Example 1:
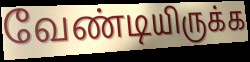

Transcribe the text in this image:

வேண்டியிருக்க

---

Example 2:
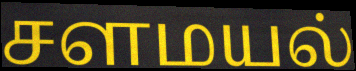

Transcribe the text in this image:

சளமயல்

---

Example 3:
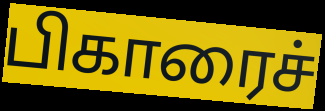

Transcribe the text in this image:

பிகாரைச்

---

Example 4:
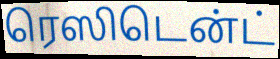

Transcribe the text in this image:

ரெஸிடென்ட்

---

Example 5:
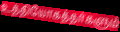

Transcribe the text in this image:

உத்தியோகத்தர்களும்